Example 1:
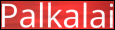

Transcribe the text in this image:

Palkalai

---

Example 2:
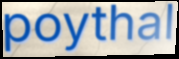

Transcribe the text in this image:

poythal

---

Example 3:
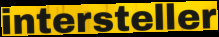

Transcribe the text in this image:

intersteller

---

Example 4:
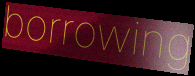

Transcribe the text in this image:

borrowing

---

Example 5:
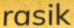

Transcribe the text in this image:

rasik